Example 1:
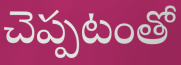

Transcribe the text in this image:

చెప్పటంతో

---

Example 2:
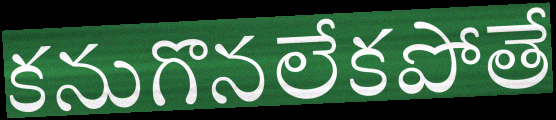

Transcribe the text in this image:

కనుగొనలేకపోతే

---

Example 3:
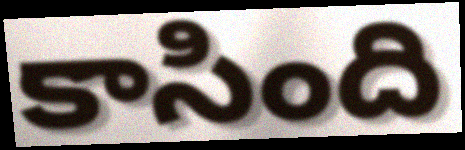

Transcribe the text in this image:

కాసింది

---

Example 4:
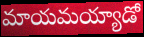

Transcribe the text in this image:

మాయమయ్యాడో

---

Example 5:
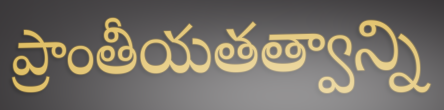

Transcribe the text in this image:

ప్రాంతీయతత్వాన్ని